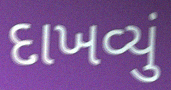
દાખવ્યું